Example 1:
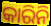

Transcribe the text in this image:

କାରିନି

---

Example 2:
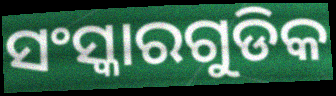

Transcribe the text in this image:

ସଂସ୍କାରଗୁଡିକ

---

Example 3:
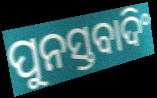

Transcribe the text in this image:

ପୁନସ୍ତବାଦିଂ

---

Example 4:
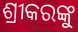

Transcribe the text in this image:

ଶ୍ରୀକରଙ୍କୁ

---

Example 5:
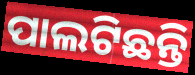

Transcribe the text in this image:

ପାଲଟିଛନ୍ତି